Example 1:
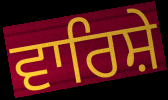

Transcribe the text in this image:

ਵਾਰਿਸ਼ੇ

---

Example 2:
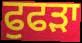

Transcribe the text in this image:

ਫੁਫੜਾ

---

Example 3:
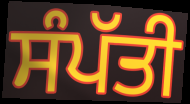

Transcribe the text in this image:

ਸੰਪੱਤੀ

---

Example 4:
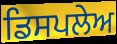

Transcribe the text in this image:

ਡਿਸਪਲੇਅ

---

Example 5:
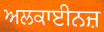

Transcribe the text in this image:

ਅਲਕਾਈਨਜ਼